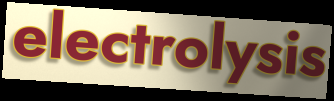
electrolysis